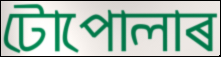
টোপোলাৰ